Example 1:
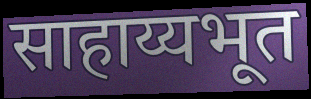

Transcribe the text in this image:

साहाय्यभूत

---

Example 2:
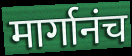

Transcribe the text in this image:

मार्गानंच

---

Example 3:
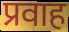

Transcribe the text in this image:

प्रवाह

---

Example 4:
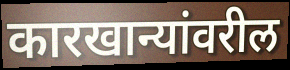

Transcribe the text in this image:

कारखान्यांवरील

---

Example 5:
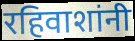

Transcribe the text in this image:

रहिवाशांनी